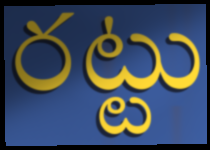
రట్టు